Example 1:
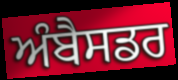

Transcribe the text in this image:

ਅੰਬੈਸਡਰ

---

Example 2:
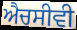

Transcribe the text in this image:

ਐਚਸੀਵੀ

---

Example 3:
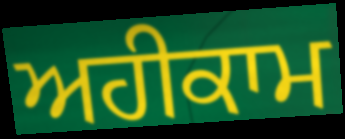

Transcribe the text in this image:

ਅਹੀਕਾਮ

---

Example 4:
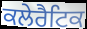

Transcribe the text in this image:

ਕਲੇਰੈਟਿਕ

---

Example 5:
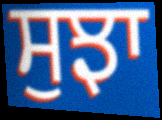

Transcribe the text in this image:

ਸੁਝਾ